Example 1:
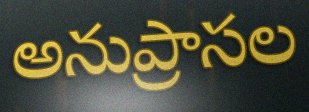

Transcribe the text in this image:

అనుప్రాసల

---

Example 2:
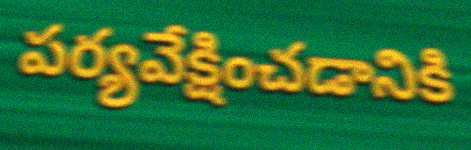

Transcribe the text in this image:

పర్యవేక్షించడానికి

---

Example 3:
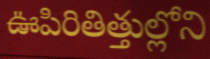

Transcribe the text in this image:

ఊపిరితిత్తుల్లోని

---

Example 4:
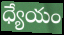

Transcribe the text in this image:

ధ్యేయం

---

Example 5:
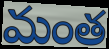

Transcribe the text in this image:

మంత